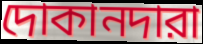
দোকানদারা